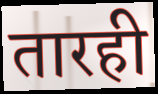
तारही